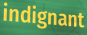
indignant